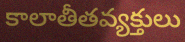
కాలాతీతవ్యక్తులు